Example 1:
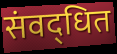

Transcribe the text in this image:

संवद्धित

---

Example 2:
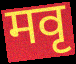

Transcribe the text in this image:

मवृ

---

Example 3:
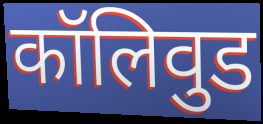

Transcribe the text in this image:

कॉलिवुड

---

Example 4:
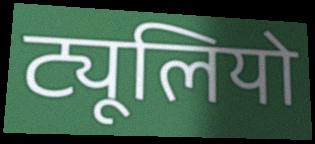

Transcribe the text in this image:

ट्यूलियो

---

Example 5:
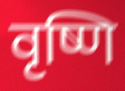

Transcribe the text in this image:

वृष्णि